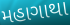
મહાગાથા